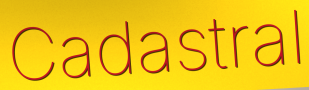
Cadastral